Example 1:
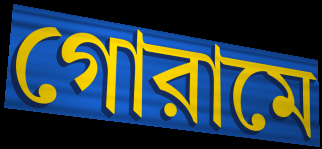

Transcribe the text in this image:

গোরামে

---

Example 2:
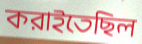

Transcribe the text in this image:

করাইতেছিল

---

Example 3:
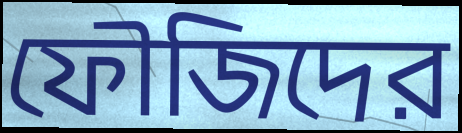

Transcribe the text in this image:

ফৌজিদের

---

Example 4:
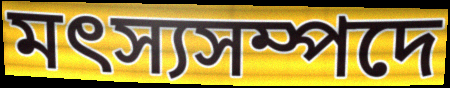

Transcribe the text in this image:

মৎস্যসম্পদে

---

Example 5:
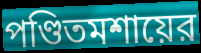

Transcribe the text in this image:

পণ্ডিতমশায়ের